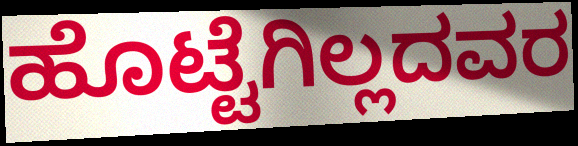
ಹೊಟ್ಟೆಗಿಲ್ಲದವರ